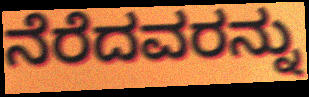
ನೆರೆದವರನ್ನು